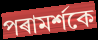
পৰামৰ্শকে